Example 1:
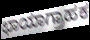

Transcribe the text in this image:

ಛಾಯಾಗ್ರಾಹಕ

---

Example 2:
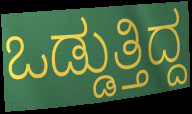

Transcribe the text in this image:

ಒಡ್ಡುತ್ತಿದ್ದ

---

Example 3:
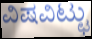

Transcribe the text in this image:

ವಿಷವಿಟ್ಟು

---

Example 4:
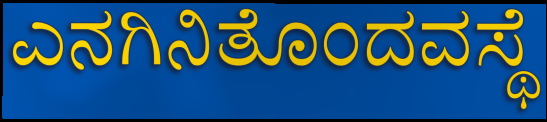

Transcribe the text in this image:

ಎನಗಿನಿತೊಂದವಸ್ಥೆ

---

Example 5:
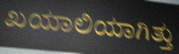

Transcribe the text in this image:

ಖಯಾಲಿಯಾಗಿತ್ತು